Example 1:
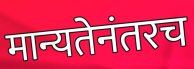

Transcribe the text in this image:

मान्यतेनंतरच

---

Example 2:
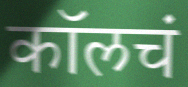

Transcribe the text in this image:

कॉलचं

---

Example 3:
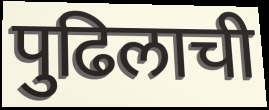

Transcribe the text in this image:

पुढिलाची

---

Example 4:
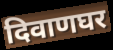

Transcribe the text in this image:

दिवाणघर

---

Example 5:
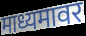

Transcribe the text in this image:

माध्यमावर